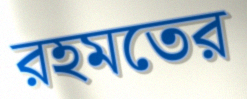
রহমতের